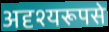
अदृश्यरूपसे